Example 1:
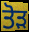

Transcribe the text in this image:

ਤੋਡ਼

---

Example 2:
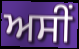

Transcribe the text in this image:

ਅਸੀੰ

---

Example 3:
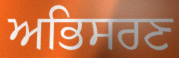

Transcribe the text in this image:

ਅਭਿਸਰਣ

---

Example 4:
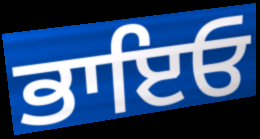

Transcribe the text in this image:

ਭਾਇਓ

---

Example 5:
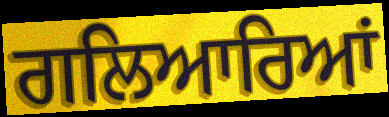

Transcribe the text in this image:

ਗਲਿਆਰਿਆਂ